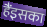
हैंइसका